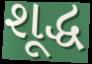
શૂદ્ધ